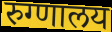
रुग्णालय